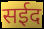
सईद